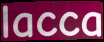
lacca